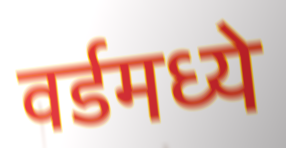
वर्डमध्ये